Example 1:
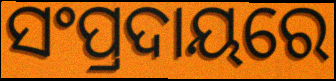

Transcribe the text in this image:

ସଂପ୍ରଦାୟରେ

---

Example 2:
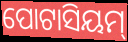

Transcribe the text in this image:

ପୋଟାସିୟମ୍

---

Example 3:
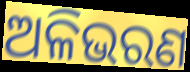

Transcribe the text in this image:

ଅଳିଭରଣ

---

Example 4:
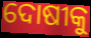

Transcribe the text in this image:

ଦୋଷୀକୁ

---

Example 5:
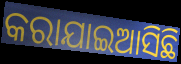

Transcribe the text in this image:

କରାଯାଇଆସିଛି